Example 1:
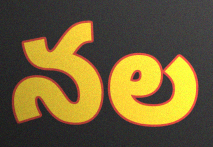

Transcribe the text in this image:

నల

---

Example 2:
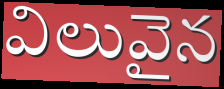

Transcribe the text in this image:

విలువైన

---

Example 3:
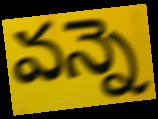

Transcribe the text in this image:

వన్నె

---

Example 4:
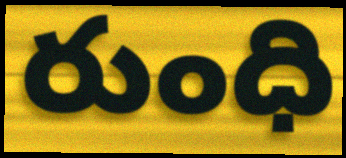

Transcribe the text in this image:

రుంధి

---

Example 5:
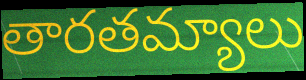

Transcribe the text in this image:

తారతమ్యాలు